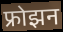
फ्रोझन